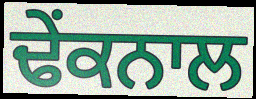
ਢੇਂਕਨਾਲ